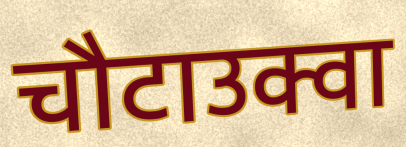
चौटाउक्वा